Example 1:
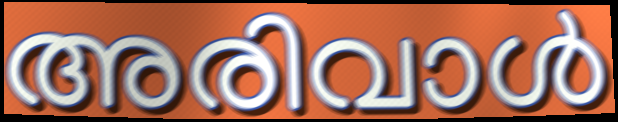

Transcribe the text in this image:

അരിവാൾ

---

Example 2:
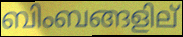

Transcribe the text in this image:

ബിംബങ്ങളില്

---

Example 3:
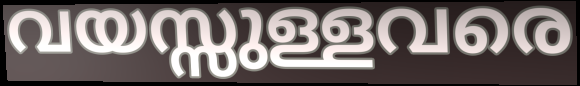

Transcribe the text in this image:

വയസ്സുള്ളവരെ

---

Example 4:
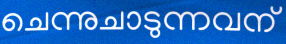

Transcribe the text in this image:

ചെന്നുചാടുന്നവന്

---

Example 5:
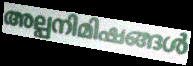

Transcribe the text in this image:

അല്പനിമിഷങ്ങൾ